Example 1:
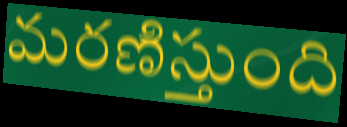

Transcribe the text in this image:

మరణిస్తుంది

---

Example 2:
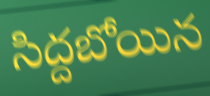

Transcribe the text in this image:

సిద్దబోయిన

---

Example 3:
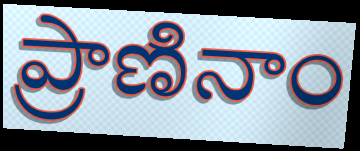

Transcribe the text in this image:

ప్రాణినాం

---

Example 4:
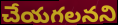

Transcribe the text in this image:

చేయగలనని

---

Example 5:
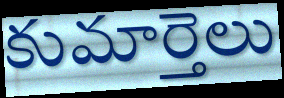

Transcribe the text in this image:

కుమార్తెలు